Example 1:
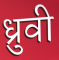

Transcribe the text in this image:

ध्रुवी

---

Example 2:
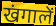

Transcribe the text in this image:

खंगालें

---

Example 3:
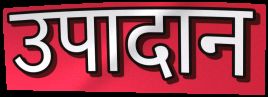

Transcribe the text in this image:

उपादान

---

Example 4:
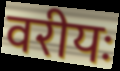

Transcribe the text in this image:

वरीयः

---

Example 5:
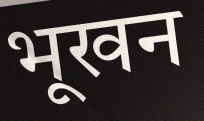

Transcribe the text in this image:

भूखन